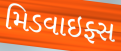
મિડવાઇફ્સ